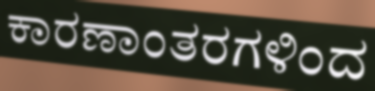
ಕಾರಣಾಂತರಗಳಿಂದ